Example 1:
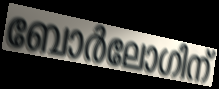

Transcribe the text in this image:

ബോർലോഗിന്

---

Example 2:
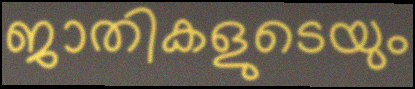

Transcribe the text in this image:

ജാതികളുടെയും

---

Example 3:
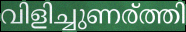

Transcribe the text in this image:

വിളിച്ചുണര്ത്തി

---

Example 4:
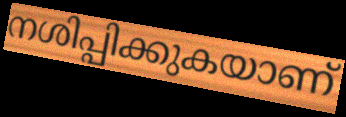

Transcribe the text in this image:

നശിപ്പിക്കുകയാണ്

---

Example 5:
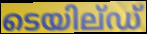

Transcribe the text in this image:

ടെയില്ഡ്